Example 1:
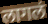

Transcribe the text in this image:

लागलं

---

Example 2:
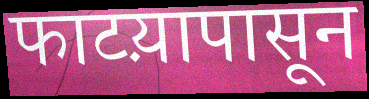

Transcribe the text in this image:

फाटय़ापासून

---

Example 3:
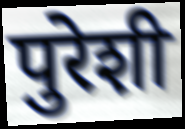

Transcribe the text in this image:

पुरेशी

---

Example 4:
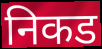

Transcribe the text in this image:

निकड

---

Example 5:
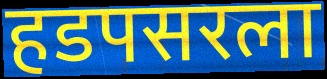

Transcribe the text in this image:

हडपसरला